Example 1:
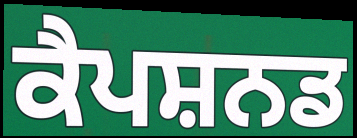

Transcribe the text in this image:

ਕੈਪਸ਼ਨਡ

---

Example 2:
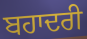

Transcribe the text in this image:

ਬਹਾਦਰੀ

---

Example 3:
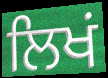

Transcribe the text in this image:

ਲਿਖਂ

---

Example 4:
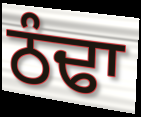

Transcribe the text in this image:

ਠੰਢਾ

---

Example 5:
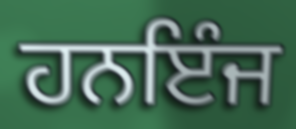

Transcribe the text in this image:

ਹਨਇੰਜ